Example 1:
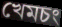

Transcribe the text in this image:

খেমচং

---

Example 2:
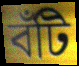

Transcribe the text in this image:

বঁটি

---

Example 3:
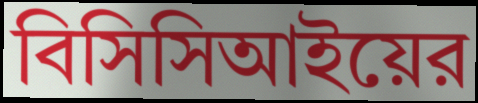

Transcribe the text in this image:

বিসিসিআইয়ের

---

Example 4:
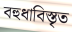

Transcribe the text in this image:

বহুধাবিস্তৃত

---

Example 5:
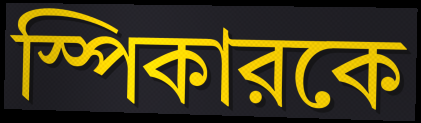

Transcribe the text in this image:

স্পিকারকে